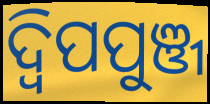
ଦ୍ଵିପପୁଞ୍ଜ